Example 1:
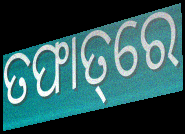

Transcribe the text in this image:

ତଫାତ୍‌ରେ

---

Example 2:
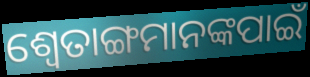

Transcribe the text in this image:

ଶ୍ୱେତାଙ୍ଗମାନଙ୍କପାଇଁ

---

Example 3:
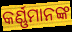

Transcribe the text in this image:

କର୍ଣ୍ଣମାନଙ୍କ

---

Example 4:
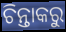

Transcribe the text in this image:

ଚିନ୍ତାକରୁ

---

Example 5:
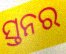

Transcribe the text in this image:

ସ୍ତନର